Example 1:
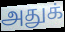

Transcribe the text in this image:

அதுக்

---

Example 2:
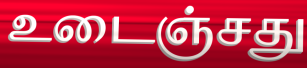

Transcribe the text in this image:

உடைஞ்சது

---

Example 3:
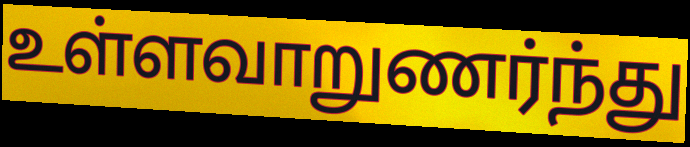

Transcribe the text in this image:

உள்ளவாறுணர்ந்து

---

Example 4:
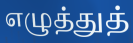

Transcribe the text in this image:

எழுத்துத்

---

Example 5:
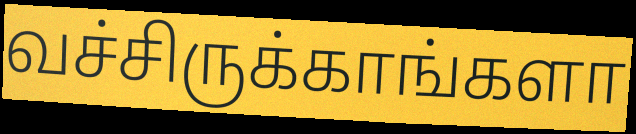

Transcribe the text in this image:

வச்சிருக்காங்களா